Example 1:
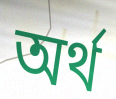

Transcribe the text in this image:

অর্থ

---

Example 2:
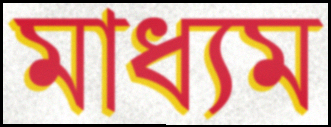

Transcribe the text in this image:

মাধ্যম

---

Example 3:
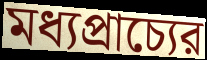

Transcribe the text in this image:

মধ্যপ্রাচ্যের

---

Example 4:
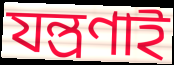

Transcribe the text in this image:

যন্ত্রণাই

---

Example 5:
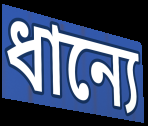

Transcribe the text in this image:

ধান্যে